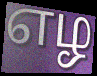
எழ